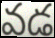
వడ